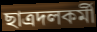
ছাত্রদলকর্মী